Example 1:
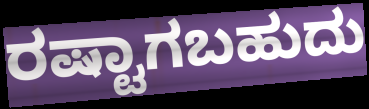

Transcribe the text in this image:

ರಷ್ಟಾಗಬಹುದು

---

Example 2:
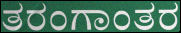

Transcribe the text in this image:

ತರಂಗಾಂತರ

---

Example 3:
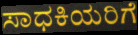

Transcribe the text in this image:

ಸಾಧಕಿಯರಿಗೆ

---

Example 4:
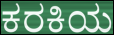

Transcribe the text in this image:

ಕರಕಿಯ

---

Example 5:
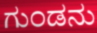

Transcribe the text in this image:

ಗುಂಡನು